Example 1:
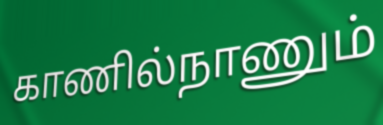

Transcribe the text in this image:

காணில்நாணும்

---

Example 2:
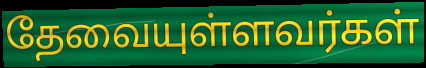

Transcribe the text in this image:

தேவையுள்ளவர்கள்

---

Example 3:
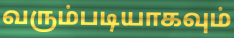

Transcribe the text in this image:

வரும்படியாகவும்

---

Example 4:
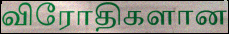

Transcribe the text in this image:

விரோதிகளான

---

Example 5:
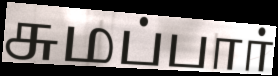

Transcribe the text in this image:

சுமப்பார்